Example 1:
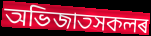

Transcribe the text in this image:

অভিজাতসকলৰ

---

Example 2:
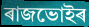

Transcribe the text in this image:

ৰাজভোইৰ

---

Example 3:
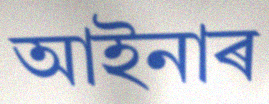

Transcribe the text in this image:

আইনাৰ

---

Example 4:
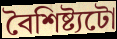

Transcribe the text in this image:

বৈশিষ্ট্যটো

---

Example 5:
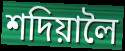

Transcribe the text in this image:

শদিয়ালৈ